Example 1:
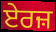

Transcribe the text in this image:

ਏਰਜ਼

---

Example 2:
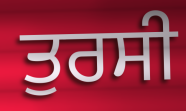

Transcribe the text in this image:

ਤੁਰਸੀ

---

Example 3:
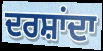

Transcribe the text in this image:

ਦਰਸ਼ਾਂਦਾ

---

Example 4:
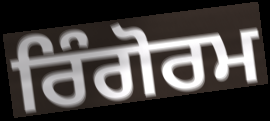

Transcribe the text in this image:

ਰਿੰਗੋਰਮ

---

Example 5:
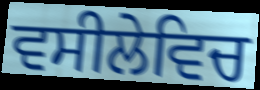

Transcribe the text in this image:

ਵਸੀਲੇਵਿਚ